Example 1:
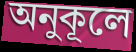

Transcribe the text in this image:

অনুকূলে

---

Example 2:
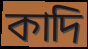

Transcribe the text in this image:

কাদি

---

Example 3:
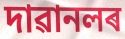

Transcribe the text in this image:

দাৱানলৰ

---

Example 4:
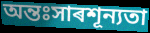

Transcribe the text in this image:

অন্তঃসাৰশূন্যতা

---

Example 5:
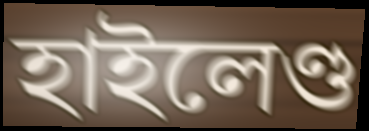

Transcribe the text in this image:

হাইলেণ্ড